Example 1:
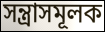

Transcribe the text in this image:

সন্ত্রাসমূলক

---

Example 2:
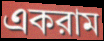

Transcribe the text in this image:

একরাম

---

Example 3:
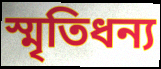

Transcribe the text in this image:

স্মৃতিধন্য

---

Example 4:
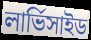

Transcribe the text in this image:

লার্ভিসাইড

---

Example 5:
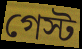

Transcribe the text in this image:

গেস্ট